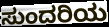
ಸುಂದರಿಯ